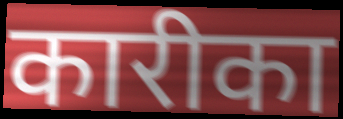
कारीका